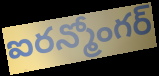
ఐరన్మోంగర్